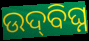
ଉଦ୍‌ବିଘ୍ନ